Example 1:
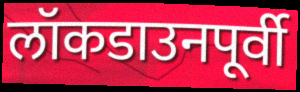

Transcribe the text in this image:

लॉकडाउनपूर्वी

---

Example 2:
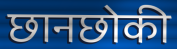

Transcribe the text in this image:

छानछोकी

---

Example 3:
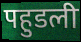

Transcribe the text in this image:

पहुडली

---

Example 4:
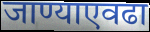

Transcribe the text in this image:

जाण्याएवढा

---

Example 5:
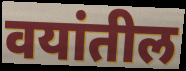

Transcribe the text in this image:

वयांतील